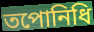
তপোনিধি